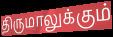
திருமாலுக்கும்